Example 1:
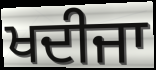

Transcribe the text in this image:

ਖਦੀਜਾ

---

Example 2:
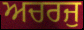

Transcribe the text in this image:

ਅਚਰਜੁ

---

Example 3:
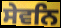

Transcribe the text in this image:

ਸੇਵਨਿ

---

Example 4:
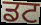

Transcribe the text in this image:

ਡਟ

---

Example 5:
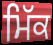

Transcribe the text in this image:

ਮਿੱਕ